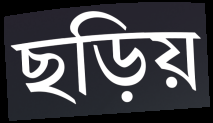
ছড়িয়